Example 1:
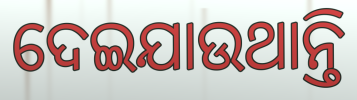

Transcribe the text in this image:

ଦେଇଯାଉଥାନ୍ତି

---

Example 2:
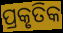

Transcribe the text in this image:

ପ୍ରକୃତିକ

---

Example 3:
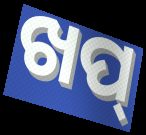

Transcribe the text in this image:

ଖପ୍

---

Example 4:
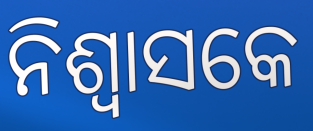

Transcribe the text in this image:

ନିଶ୍ଵାସକେ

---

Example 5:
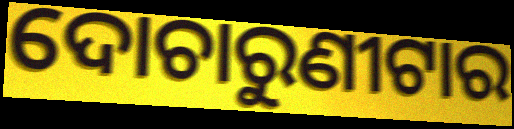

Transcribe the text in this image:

ଦୋଚାରୁଣୀଟାର